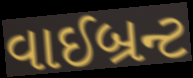
વાઈબ્રન્ટ